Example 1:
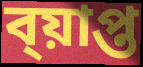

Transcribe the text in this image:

ব্য়াপ্ত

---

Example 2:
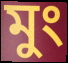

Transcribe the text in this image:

মুং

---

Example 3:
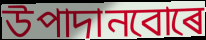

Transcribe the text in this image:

উপাদানবোৰে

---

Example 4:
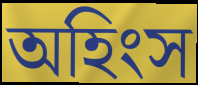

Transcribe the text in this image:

অহিংস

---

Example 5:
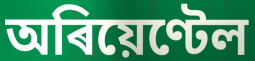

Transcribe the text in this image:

অৰিয়েণ্টেল